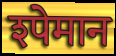
श्पेमान